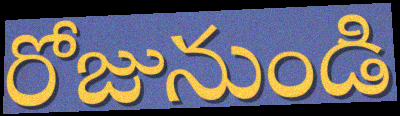
రోజునుండి